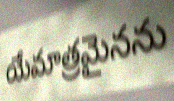
యేమాత్రమైనను